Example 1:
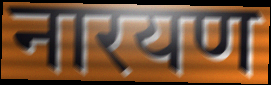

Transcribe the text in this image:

नारयण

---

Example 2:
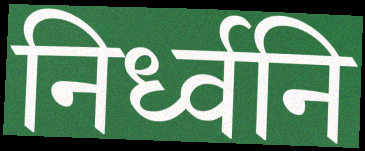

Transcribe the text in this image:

निर्ध्वनि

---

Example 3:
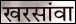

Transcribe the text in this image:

खरसांवा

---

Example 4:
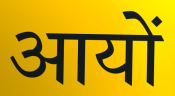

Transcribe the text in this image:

आयों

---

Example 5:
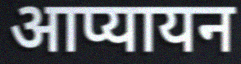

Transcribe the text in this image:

आप्यायन